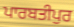
ਪਾਰਬਤੀਪੁਰ